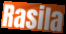
Rasila